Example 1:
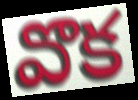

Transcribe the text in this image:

వొక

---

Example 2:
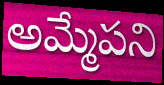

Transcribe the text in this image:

అమ్మేపని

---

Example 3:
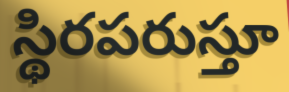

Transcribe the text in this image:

స్థిరపరుస్తూ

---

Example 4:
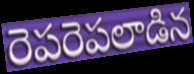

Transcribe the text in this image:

రెపరెపలాడిన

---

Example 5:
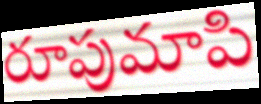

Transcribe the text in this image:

రూపుమాపి